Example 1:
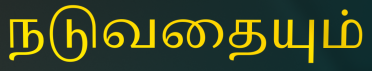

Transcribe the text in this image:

நடுவதையும்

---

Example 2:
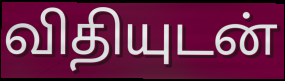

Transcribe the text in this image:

விதியுடன்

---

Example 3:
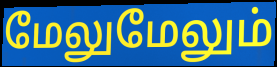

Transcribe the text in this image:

மேலுமேலும்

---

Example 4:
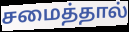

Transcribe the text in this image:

சமைத்தால்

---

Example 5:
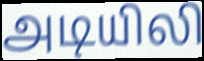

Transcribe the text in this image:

அடியிலி